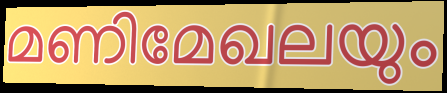
മണിമേഖലയും